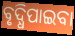
ବୃଦ୍ଧିପାଇବା